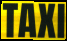
TAXI